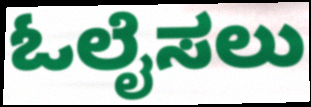
ಓಲೈಸಲು